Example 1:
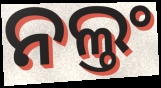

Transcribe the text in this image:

ନଲ୍ତଂ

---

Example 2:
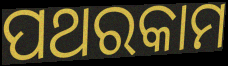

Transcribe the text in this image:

ପଥରକାମ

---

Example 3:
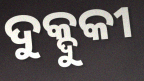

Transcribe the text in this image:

ଦୁକ୍ଦୁକୀ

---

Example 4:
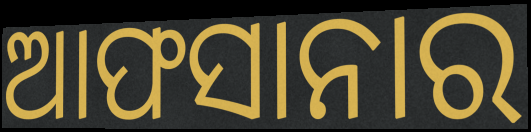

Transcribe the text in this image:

ଆଫସାନାର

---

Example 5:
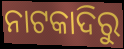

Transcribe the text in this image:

ନାଟକାଦିରୁ